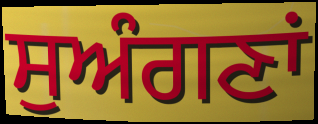
ਸੁਅੰਗਣਾਂ